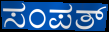
ಸಂಪತ್